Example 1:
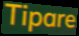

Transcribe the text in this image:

Tipare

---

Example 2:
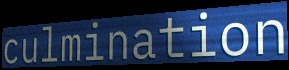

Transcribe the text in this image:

culmination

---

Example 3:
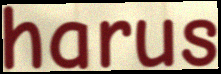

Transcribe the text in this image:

harus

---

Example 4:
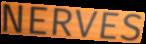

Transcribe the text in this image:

NERVES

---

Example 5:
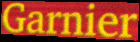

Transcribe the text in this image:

Garnier